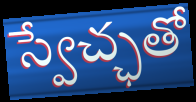
స్వేచ్ఛతో